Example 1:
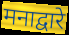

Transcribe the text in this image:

मनाद्वारे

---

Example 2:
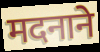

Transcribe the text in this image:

मदनाने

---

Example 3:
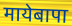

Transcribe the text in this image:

मायेबापा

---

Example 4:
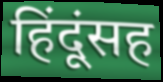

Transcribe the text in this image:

हिंदूंसह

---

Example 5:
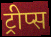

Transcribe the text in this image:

ट्रीप्स